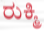
ರುಕ್ಮಿ